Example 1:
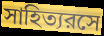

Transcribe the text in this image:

সাহিত্যরসে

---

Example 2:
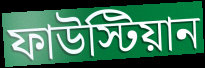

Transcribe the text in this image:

ফাউস্টিয়ান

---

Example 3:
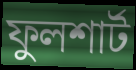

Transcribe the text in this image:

ফুলশার্ট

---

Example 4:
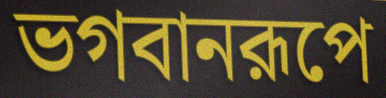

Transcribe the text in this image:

ভগবানরূপে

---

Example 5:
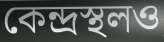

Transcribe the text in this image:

কেন্দ্রস্থলও